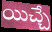
యిచ్చే